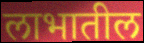
लाभातील